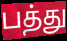
பத்து